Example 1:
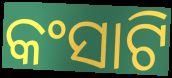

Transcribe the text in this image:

କଂସାଟି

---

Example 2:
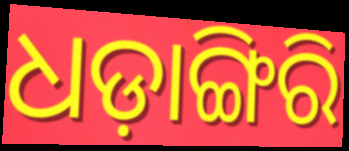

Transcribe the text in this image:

ଧଡ଼ାଙ୍ଗିରି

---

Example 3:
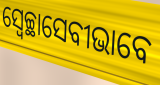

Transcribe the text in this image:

ସ୍ୱେଚ୍ଛାସେବୀଭାବେ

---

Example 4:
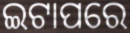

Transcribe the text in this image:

ଇଟାପରେ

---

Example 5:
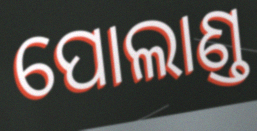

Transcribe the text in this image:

ପୋଲାଣ୍ଡ